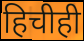
हिचीही